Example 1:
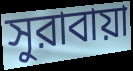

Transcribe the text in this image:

সুরাবায়া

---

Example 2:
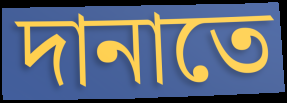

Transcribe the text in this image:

দানাতে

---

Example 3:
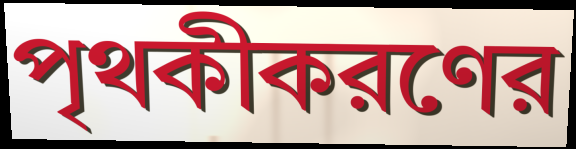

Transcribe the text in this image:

পৃথকীকরণের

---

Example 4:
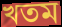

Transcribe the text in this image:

খতম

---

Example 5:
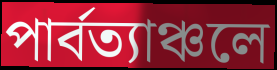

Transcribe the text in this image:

পার্বত্যাঞ্চলে